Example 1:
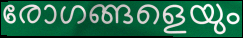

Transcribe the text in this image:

രോഗങ്ങളെയും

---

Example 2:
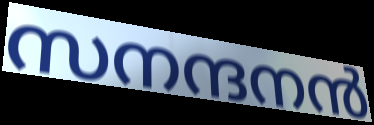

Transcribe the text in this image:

സനന്ദനൻ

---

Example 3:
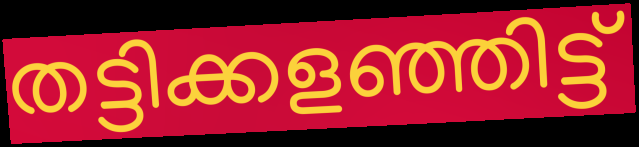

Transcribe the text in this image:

തട്ടിക്കളഞ്ഞിട്ട്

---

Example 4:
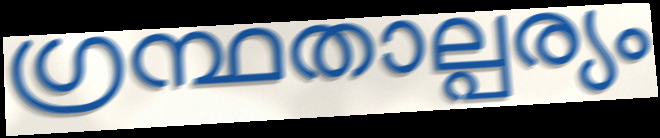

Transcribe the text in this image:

ഗ്രന്ഥതാല്പര്യം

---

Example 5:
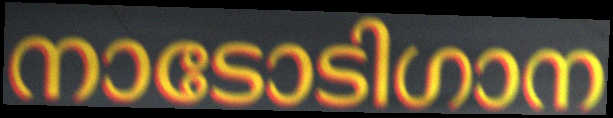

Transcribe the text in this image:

നാടോടിഗാന